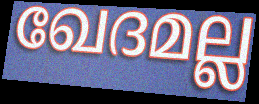
ഖേദമല്ല